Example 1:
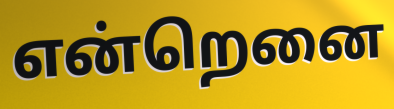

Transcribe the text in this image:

என்றெனை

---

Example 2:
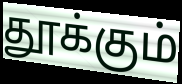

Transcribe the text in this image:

தூக்கும்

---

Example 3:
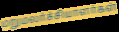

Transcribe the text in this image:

மறுமலர்ச்சியாளர்கள்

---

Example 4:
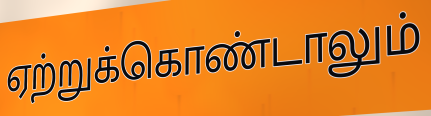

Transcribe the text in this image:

ஏற்றுக்கொண்டாலும்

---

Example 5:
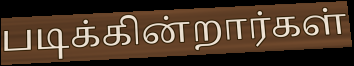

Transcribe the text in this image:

படிக்கின்றார்கள்